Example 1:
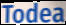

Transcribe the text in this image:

Todea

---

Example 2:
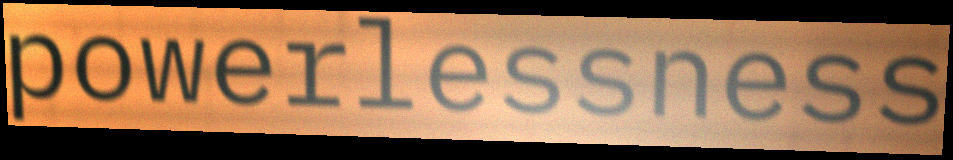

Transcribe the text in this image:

powerlessness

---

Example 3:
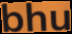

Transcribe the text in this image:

bhu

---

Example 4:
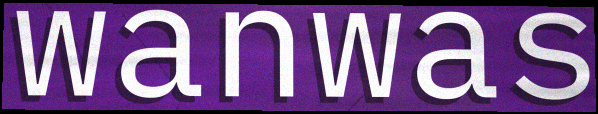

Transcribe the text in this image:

wanwas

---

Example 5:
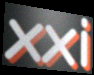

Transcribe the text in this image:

xxi